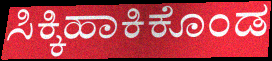
ಸಿಕ್ಕಿಹಾಕಿಕೊಂಡ